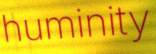
huminity